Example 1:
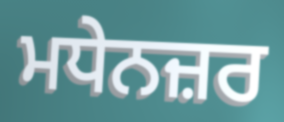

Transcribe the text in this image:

ਮਧੇਨਜ਼ਰ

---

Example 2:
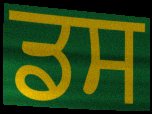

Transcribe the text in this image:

ਡਸ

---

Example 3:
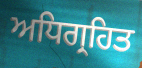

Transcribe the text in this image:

ਅਧਿਗ੍ਰਹਿਤ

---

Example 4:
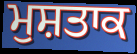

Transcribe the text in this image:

ਮੁਸ਼ਤਾਕ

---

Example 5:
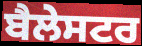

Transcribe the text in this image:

ਬੈਲੇਸਟਰ